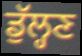
ਡੁੱਲ੍ਹਣ